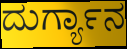
ದುರ್ಗ್ಯಾನ